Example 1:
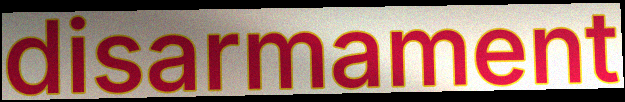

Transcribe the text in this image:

disarmament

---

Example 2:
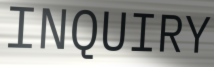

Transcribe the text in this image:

INQUIRY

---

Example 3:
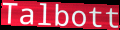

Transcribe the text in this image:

Talbott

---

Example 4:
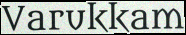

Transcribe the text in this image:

Varukkam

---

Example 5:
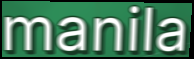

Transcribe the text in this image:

manila